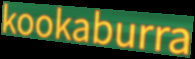
kookaburra